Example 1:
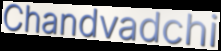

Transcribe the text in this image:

Chandvadchi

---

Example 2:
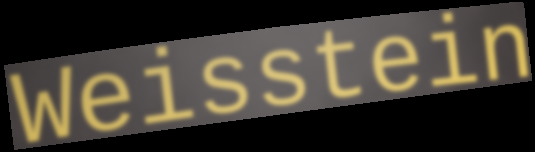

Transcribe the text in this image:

Weisstein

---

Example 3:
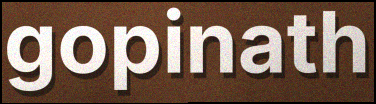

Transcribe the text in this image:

gopinath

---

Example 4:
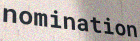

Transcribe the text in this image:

nomination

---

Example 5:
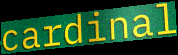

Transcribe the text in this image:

cardinal